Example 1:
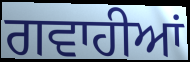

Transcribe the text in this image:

ਗਵਾਹੀਆਂ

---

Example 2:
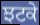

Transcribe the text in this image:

ਝਟਕੇ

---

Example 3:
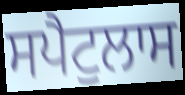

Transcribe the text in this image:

ਸਪੈਟੁਲਾਸ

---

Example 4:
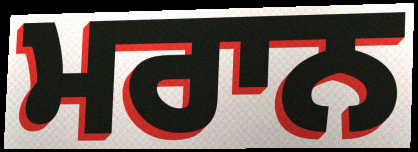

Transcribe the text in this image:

ਮਰਾਨ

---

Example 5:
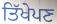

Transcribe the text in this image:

ਤਿੱਖੇਪਣ